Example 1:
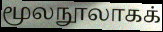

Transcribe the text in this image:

மூலநூலாகக்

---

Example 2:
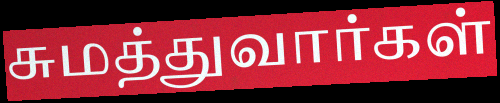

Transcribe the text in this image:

சுமத்துவார்கள்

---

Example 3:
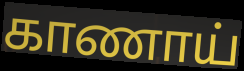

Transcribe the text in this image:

காணாய்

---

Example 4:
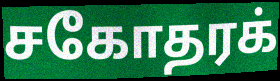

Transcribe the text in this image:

சகோதரக்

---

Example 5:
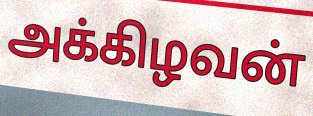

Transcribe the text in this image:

அக்கிழவன்